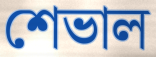
শেভাল